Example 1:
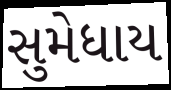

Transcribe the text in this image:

સુમેધાય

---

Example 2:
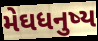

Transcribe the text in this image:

મેઘધનુષ્ય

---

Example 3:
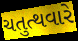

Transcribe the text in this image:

ચતુત્થવારે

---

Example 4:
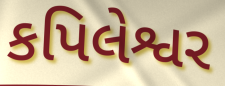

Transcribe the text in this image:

કપિલેશ્વર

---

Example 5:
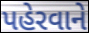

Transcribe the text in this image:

પહેરવાને